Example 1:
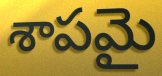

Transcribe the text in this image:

శాపమై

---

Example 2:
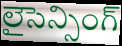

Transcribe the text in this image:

లైసెన్సింగ్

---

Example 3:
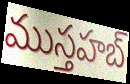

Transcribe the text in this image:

ముస్తహబ్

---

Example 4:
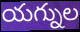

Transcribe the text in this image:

యగ్నుల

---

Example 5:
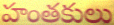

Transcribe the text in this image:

హంతకులు